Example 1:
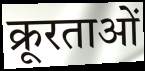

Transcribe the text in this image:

क्रूरताओं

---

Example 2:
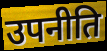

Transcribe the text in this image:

उपनीति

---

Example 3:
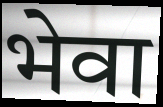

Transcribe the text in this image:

भेवा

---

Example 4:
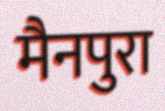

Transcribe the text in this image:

मैनपुरा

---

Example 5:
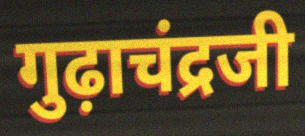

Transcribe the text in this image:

गुढ़ाचंद्रजी